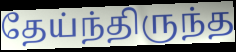
தேய்ந்திருந்த